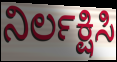
ನಿರ್ಲಕ್ಷಿಸಿ